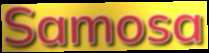
Samosa